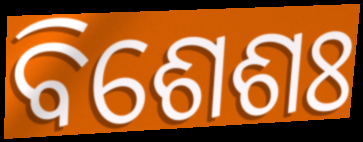
ବିଶେଶଃ